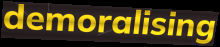
demoralising